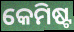
କେମିଷ୍ଟ